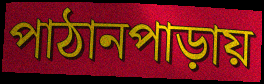
পাঠানপাড়ায়